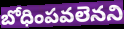
బోధింపవలెనని